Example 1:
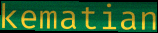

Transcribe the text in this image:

kematian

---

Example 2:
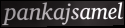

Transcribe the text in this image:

pankajsamel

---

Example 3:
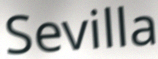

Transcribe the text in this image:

Sevilla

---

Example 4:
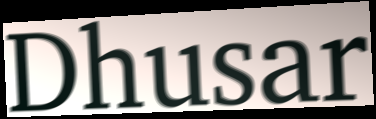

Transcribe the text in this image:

Dhusar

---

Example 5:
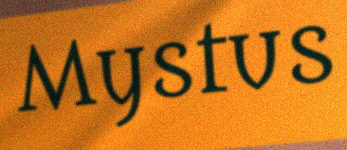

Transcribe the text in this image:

Mystus